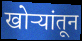
खोऱ्यांतून